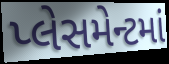
પ્લેસમેન્ટમાં